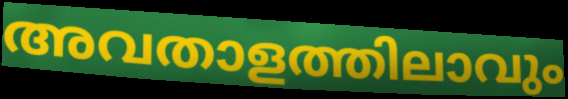
അവതാളത്തിലാവും